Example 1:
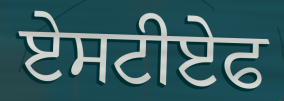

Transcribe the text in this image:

ਏਸਟੀਏਫ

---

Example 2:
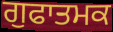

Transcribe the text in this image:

ਗੁਫਾਤਮਕ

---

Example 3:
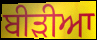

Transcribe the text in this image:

ਬੀੜੀਆ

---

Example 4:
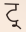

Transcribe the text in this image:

ਟ੍ਰ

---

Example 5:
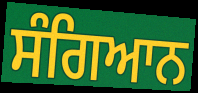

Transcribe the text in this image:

ਸੰਗਿਆਨ